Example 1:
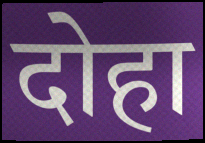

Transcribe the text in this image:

दोहा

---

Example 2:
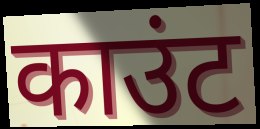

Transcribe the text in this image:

काउंट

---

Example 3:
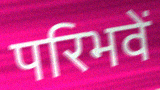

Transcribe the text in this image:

परिभवें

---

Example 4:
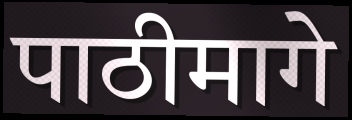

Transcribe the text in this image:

पाठीमागे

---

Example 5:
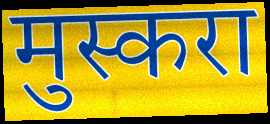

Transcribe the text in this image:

मुस्करा